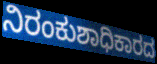
ನಿರಂಕುಶಾಧಿಕಾರದ